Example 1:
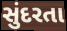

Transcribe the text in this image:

સુંદરતા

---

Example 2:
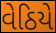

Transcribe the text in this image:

વેઠિયે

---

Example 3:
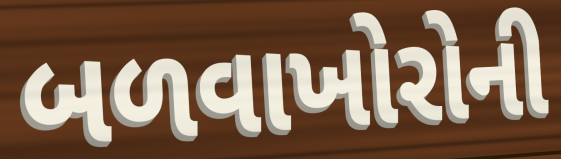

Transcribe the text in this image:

બળવાખોરોની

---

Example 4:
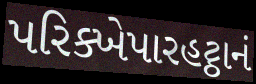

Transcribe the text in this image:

પરિક્ખેપારહટ્ઠાનં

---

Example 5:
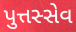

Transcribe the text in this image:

પુત્તસ્સેવ